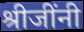
श्रीजींनी